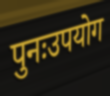
पुनःउपयोग